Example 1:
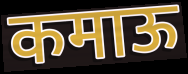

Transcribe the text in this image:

कमाऊ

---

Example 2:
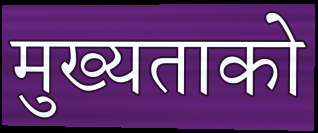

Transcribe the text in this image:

मुख्यताको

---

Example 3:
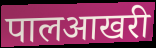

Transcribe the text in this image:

पालआखरी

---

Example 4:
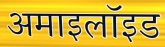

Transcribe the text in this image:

अमाइलॉइड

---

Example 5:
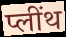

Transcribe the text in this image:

प्लींथ